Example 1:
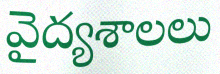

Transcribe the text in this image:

వైద్యశాలలు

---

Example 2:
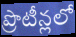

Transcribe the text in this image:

ప్రొటీన్లలో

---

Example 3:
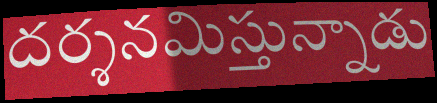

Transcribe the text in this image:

దర్శనమిస్తున్నాడు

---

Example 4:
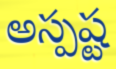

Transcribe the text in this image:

అస్పష్ట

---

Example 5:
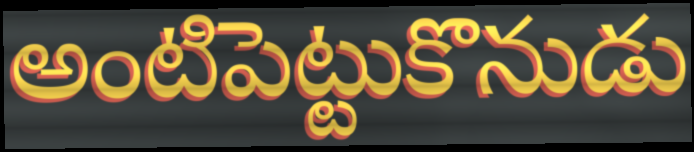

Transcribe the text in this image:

అంటిపెట్టుకొనుడు